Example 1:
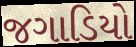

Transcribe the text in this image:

જગાડિયો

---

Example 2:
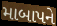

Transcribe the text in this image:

માબાપને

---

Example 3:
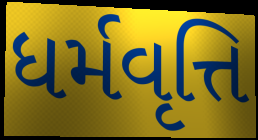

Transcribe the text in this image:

ધર્મવૃત્તિ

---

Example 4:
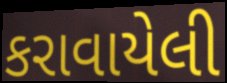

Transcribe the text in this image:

કરાવાયેલી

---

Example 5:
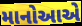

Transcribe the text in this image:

માનોઆએ